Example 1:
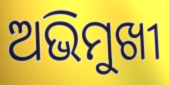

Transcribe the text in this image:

ଅଭିମୁଖୀ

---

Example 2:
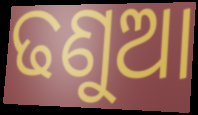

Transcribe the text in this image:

ଢଣୁଆ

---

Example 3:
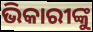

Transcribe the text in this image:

ଭିକାରୀଙ୍କୁ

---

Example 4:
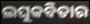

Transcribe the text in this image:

ଲଘୁକବିତାର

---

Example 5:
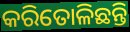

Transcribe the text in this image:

କରିତୋଳିଛନ୍ତି